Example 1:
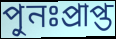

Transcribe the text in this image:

পুনঃপ্রাপ্ত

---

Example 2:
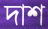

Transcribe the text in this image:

দাশ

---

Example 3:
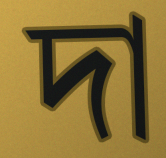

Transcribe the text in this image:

দা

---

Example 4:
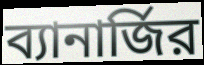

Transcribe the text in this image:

ব্যানার্জির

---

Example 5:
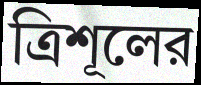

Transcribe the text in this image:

ত্রিশূলের